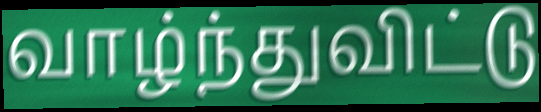
வாழ்ந்துவிட்டு